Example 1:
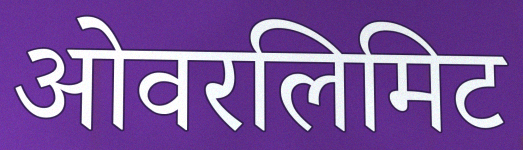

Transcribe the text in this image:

ओवरलिमिट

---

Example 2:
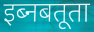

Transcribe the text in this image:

इब्नबतूता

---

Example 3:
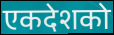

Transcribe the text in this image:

एकदेशको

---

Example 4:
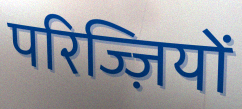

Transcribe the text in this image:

परिज्ज़ियों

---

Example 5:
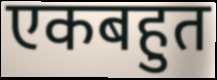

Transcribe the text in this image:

एकबहुत